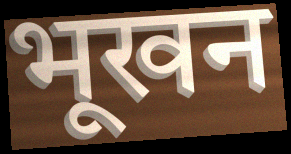
भूखन